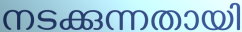
നടക്കുന്നതായി